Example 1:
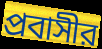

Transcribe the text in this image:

প্রবাসীর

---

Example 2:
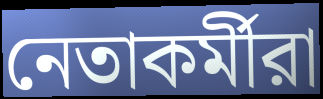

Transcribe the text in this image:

নেতাকর্মীরা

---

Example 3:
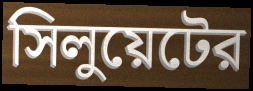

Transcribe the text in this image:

সিলুয়েটের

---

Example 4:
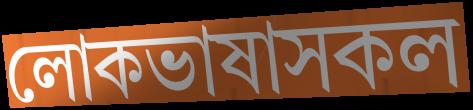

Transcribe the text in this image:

লোকভাষাসকল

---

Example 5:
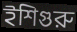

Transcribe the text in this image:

ইশিগুরু